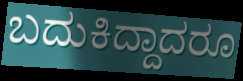
ಬದುಕಿದ್ದಾದರೂ